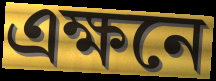
এক্ষনে